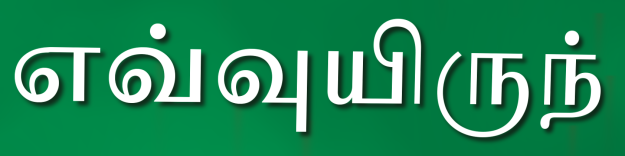
எவ்வுயிருந்